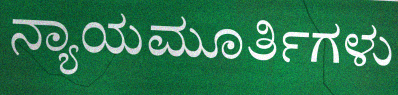
ನ್ಯಾಯಮೂರ್ತಿಗಳು